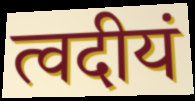
त्वदीयं